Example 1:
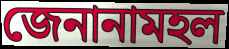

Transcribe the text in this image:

জেনানামহল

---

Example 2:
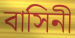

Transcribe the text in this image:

বাসিনী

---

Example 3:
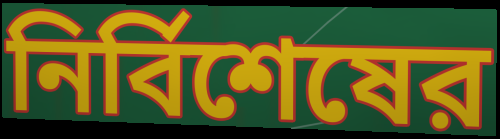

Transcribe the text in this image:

নির্বিশেষের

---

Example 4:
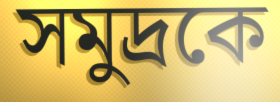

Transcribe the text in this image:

সমুদ্রকে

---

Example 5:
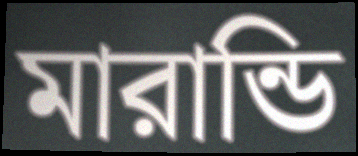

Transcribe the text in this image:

মারান্ডি